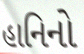
હાનિનો